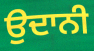
ਉਦਾਨੀ